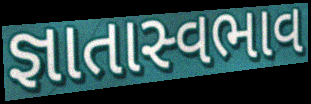
જ્ઞાતાસ્વભાવ